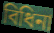
বিধিনা